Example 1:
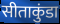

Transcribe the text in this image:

सीताकुंडा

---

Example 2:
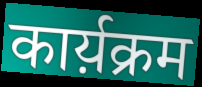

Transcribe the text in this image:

कार्य़क्रम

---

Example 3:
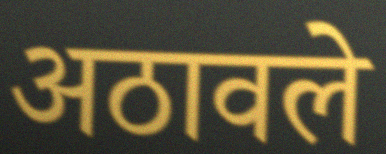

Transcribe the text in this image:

अठावले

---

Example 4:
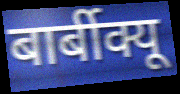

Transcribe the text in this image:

बार्बीक्यू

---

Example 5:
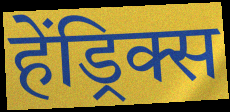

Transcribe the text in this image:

हेंड्रिक्स